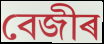
বেজীৰ